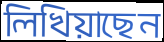
লিখিয়াছেন